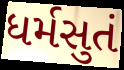
ધર્મસુતં